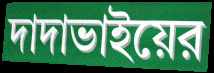
দাদাভাইয়ের